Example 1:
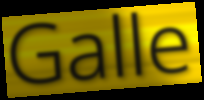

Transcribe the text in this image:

Galle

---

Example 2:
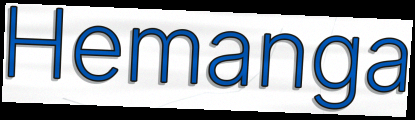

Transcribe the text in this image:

Hemanga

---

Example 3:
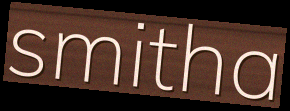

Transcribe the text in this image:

smitha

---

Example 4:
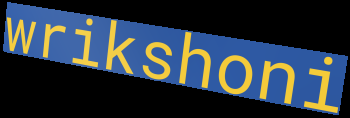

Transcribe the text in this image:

wrikshoni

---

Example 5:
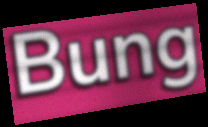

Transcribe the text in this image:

Bung